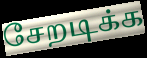
சேறடிக்க